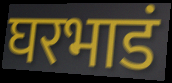
घरभाडं